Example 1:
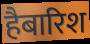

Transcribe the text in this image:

हैबारिश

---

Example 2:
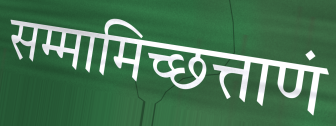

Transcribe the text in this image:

सम्मामिच्छत्ताणं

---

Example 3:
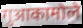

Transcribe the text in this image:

गुआकामोले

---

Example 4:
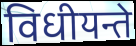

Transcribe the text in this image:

विधीयन्ते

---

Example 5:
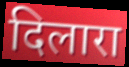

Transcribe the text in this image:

दिलारा